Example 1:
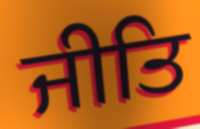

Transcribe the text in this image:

ਜੀਤਿ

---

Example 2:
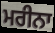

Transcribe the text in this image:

ਮਰੀਨਾ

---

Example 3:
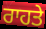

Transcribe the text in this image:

ਰਾਹਤੇ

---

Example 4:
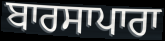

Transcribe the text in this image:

ਬਾਰਸਾਪਾਰਾ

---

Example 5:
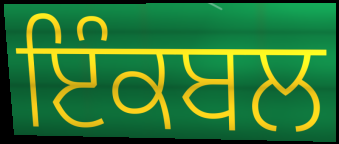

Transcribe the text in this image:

ਇੰਕਬਲ